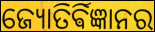
ଜ୍ୟୋତିର୍ଵିଜ୍ଞାନର